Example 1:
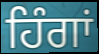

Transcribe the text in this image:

ਹਿੰਗਾਂ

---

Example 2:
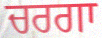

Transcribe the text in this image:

ਚਰਗਾ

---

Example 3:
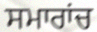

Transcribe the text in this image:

ਸਮਾਰਾਂਚ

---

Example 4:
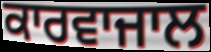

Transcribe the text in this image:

ਕਾਰਵਾਜਾਲ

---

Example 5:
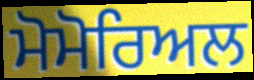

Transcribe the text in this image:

ਮੋਮੋਰਿਅਲ